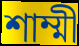
শাম্মী